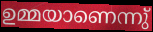
ഉമ്മയാണെന്നു്